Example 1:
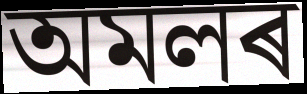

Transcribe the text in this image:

অমলৰ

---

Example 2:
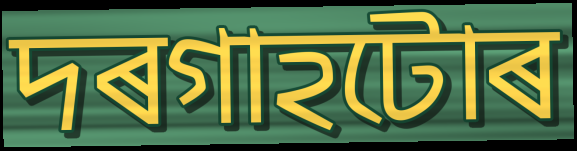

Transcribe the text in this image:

দৰগাহটোৰ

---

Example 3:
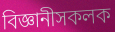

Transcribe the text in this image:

বিজ্ঞানীসকলক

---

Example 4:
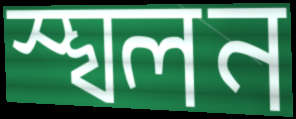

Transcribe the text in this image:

স্খলন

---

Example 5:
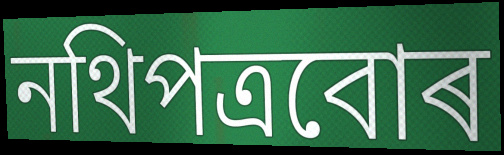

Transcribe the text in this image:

নথিপত্ৰবোৰ